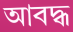
আবদ্ধ